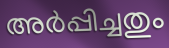
അർപ്പിച്ചതും